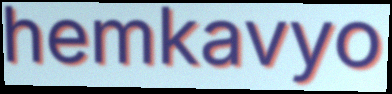
hemkavyo